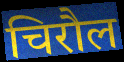
चिरौल